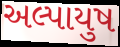
અલ્પાયુષ